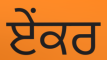
ਏੰਕਰ